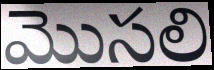
మొసలి